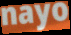
nayo